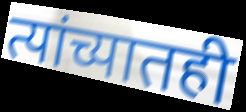
त्यांच्यातही